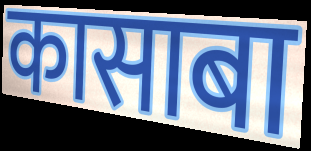
कासाबा